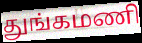
துங்கமணி